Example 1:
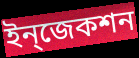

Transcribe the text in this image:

ইন্‌জেকশন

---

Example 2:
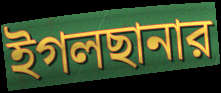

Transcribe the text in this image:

ইগলছানার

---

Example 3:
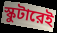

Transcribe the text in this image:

স্কুটারেই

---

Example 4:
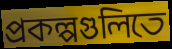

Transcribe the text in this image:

প্রকল্পগুলিতে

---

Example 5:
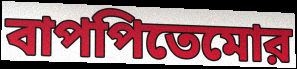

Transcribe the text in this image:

বাপপিতেমোর